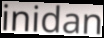
inidan